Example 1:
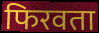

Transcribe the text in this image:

फिरवता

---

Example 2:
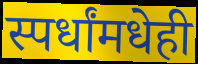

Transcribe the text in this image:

स्पर्धांमधेही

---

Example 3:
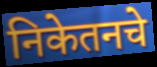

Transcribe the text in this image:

निकेतनचे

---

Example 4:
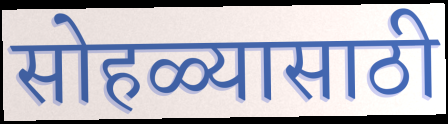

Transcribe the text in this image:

सोहळ्यासाठी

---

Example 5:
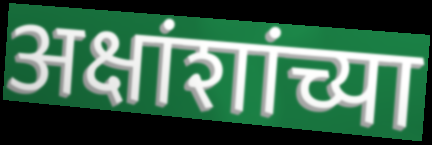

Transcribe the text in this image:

अक्षांशांच्या